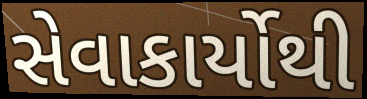
સેવાકાર્યોથી